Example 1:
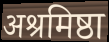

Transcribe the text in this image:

अश्रमिष्ठा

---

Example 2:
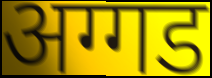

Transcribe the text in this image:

अग्गड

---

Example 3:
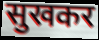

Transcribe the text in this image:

सुखकर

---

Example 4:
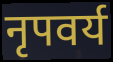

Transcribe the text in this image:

नृपवर्य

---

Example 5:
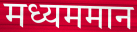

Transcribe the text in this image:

मध्यममान